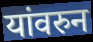
यांवरुन